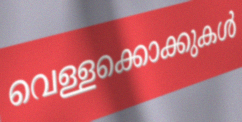
വെള്ളക്കൊക്കുകൾ